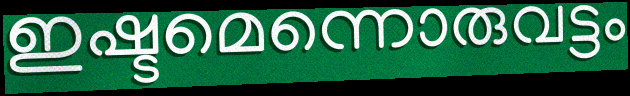
ഇഷ്ടമെന്നൊരുവട്ടം